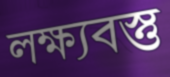
লক্ষ্যবস্তু